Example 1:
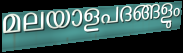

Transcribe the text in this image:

മലയാളപദങ്ങളും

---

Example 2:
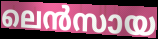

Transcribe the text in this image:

ലെൻസായ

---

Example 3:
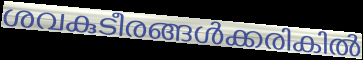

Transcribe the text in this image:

ശവകുടീരങ്ങൾക്കരികിൽ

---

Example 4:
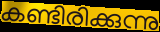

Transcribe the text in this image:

കണ്ടിരിക്കുന്നു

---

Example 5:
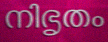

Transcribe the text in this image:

നിഭൃതം